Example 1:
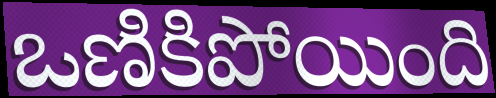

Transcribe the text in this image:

ఒణికిపోయింది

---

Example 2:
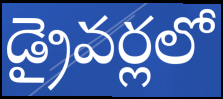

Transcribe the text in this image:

డ్రైవర్లలో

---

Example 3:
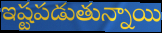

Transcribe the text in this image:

ఇష్టపడుతున్నాయి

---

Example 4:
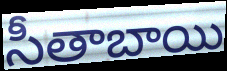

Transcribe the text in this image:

సీతాబాయి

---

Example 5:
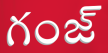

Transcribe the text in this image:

గంజ్